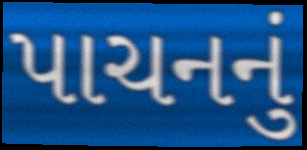
પાચનનું